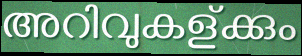
അറിവുകള്ക്കും